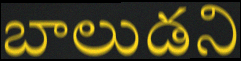
బాలుడని